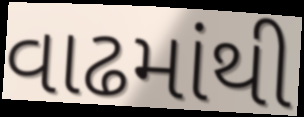
વાઢમાંથી